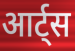
आर्ट्स